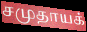
சமுதாயக்